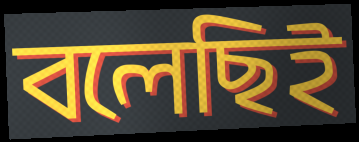
বলেছিই